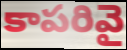
కాపరివై